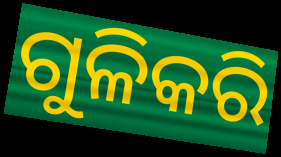
ଗୁଳିକରି